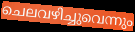
ചെലവഴിച്ചുവെന്നും